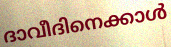
ദാവീദിനെക്കാൾ